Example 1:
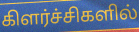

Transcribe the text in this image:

கிளர்ச்சிகளில்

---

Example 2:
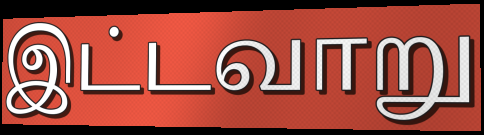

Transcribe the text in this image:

இட்டவாறு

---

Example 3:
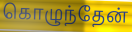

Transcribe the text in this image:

கொழுந்தேன்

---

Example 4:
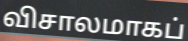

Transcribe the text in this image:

விசாலமாகப்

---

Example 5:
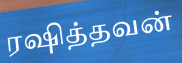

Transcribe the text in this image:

ரஷித்தவன்